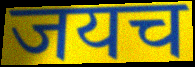
जयच